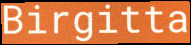
Birgitta